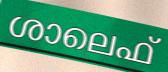
ശാലെഫ്